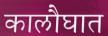
कालौघात